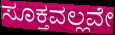
ಸೂಕ್ತವಲ್ಲವೇ